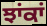
ਝਾਂਕਾਂ